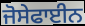
ਜੋਸੇਫਾਈਨ